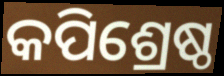
କପିଶ୍ରେଷ୍ଠ